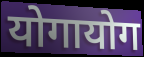
योगायोग